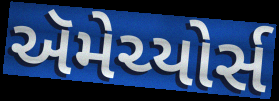
ઍમેચ્યોર્સ